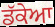
ਡੱਕੇਆ